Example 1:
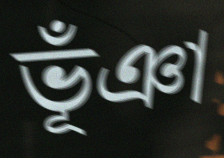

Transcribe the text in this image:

ভূঁঞা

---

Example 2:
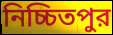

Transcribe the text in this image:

নিচ্চিতপুর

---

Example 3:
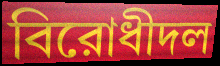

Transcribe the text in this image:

বিরোধীদল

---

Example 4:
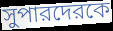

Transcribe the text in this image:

সুপারদেরকে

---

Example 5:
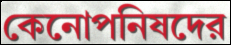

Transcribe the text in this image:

কেনোপনিষদের